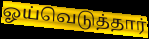
ஓய்வெடுத்தார்